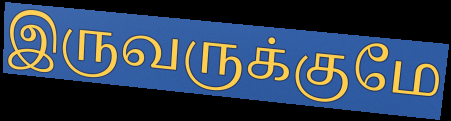
இருவருக்குமே